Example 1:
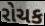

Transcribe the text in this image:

રોચક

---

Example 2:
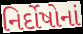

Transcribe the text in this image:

નિર્દોષોનાં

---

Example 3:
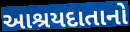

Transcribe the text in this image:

આશ્રયદાતાનો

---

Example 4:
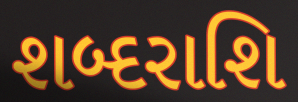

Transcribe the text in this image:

શબ્દરાશિ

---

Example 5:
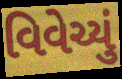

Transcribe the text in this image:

વિવેચ્યું